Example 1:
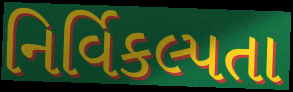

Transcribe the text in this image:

નિર્વિકલ્પતા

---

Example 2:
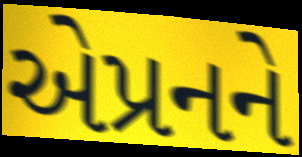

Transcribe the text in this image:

એપ્રનને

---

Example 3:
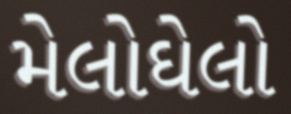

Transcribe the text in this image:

મેલોઘેલો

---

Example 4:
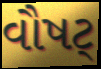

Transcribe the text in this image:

વૌષટ્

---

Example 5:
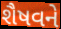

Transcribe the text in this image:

શૈષવને